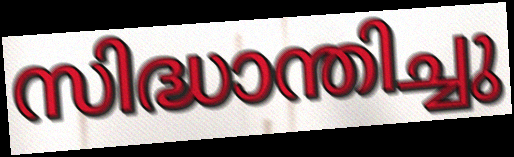
സിദ്ധാന്തിച്ചു